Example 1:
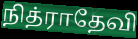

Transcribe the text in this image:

நித்ராதேவி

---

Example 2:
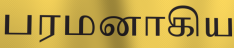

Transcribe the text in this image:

பரமனாகிய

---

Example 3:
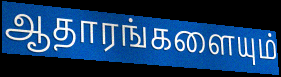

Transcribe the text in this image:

ஆதாரங்களையும்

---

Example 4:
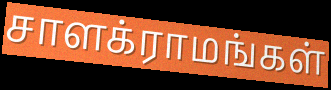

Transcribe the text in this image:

சாளக்ராமங்கள்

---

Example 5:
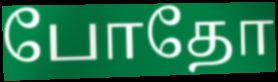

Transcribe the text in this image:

போதோ